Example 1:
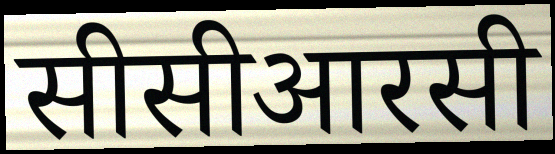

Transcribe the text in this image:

सीसीआरसी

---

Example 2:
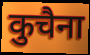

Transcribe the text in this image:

कुचैना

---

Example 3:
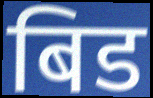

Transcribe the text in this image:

बिड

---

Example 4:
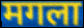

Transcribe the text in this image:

मगला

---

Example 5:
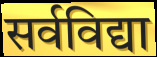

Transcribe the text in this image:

सर्वविद्या